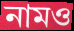
নামও